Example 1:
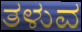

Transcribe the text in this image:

ತಳುವ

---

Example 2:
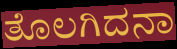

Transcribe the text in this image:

ತೊಲಗಿದನಾ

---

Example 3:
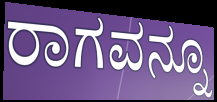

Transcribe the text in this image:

ರಾಗವನ್ನೂ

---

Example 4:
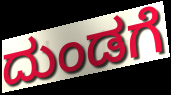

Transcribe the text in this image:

ದುಂಡಗೆ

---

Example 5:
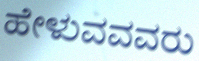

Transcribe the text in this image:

ಹೇಳುವವವರು